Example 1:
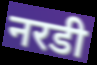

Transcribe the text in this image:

नरडी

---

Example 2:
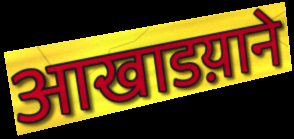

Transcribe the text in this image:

आखाडय़ाने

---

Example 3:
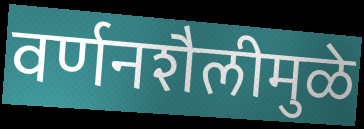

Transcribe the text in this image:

वर्णनशैलीमुळे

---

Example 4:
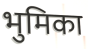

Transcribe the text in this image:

भुमिका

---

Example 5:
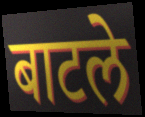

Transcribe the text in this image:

बाटले